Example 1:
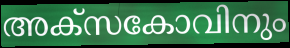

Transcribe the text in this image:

അക്സകോവിനും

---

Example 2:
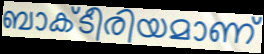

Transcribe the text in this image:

ബാക്ടീരിയമാണ്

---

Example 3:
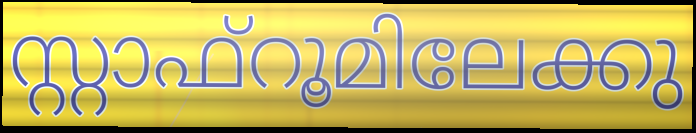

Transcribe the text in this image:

സ്റ്റാഫ്റൂമിലേക്കു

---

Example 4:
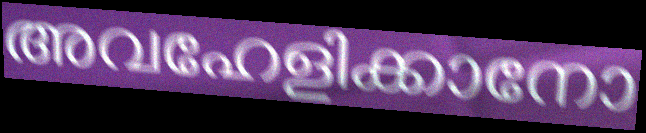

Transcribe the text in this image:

അവഹേളിക്കാനോ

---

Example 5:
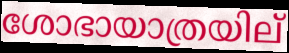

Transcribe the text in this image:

ശോഭായാത്രയില്